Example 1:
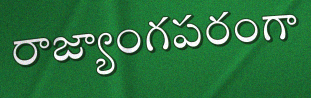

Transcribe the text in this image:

రాజ్యాంగపరంగా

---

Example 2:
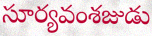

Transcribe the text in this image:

సూర్యవంశజుడు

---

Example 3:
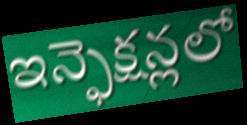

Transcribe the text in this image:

ఇన్ఫెక్షన్లలో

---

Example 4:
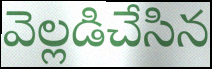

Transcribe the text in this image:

వెల్లడిచేసిన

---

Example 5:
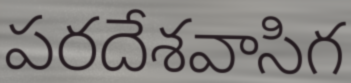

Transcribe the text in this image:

పరదేశవాసిగ